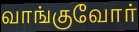
வாங்குவோர்